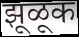
झूळूक